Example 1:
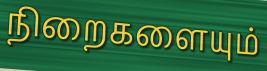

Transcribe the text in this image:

நிறைகளையும்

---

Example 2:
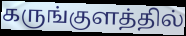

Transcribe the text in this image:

கருங்குளத்தில்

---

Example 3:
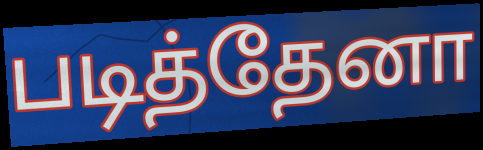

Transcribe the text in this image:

படித்தேனா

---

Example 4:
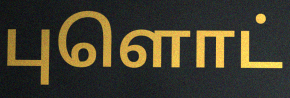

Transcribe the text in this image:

புளொட்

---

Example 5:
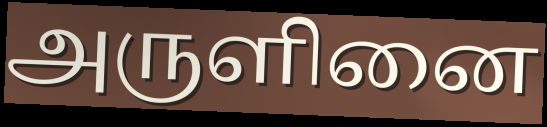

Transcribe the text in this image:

அருளினை